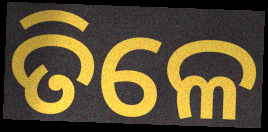
ତିଳେ